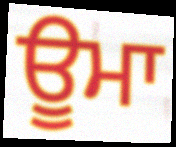
ਊਮਾ